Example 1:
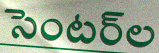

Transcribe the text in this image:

సెంటర్‌ల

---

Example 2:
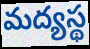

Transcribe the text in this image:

మద్యస్థ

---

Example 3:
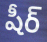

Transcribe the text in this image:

షీర్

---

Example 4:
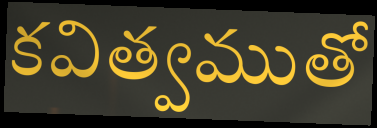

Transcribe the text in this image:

కవిత్వముతో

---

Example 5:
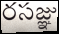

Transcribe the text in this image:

రసజ్ఞు